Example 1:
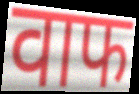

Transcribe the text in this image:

वाफ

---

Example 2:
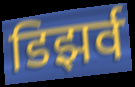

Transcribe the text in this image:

डिझर्व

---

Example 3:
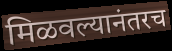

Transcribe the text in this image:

मिळवल्यानंतरच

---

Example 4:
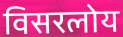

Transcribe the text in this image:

विसरलोय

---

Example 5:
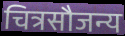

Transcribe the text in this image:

चित्रसौजन्य